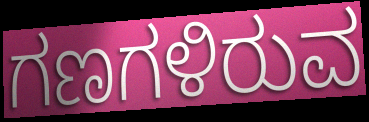
ಗಣಗಳಿರುವ